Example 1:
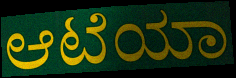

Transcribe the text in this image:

ಆಟೆಯಾ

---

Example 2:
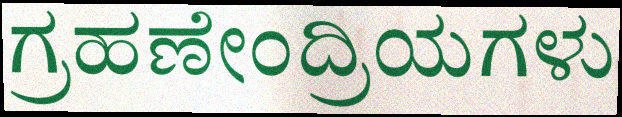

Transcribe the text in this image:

ಗ್ರಹಣೇಂದ್ರಿಯಗಳು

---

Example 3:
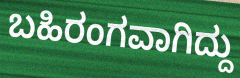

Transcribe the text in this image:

ಬಹಿರಂಗವಾಗಿದ್ದು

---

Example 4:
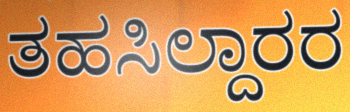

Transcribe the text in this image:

ತಹಸಿಲ್ದಾರರ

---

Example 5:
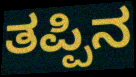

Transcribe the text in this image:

ತಪ್ಪಿನ